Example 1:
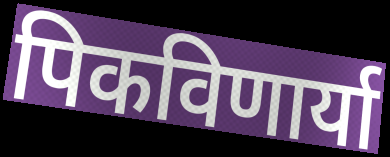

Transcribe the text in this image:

पिकविणार्या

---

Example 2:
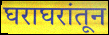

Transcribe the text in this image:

घराघरांतून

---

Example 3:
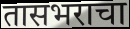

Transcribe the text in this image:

तासभराचा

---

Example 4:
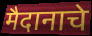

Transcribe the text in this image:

मैदानाचे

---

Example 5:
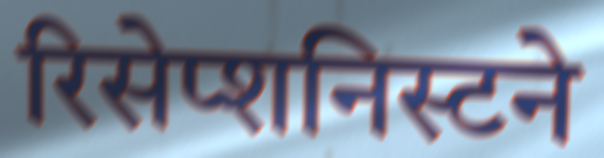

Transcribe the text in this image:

रिसेप्शनिस्टने